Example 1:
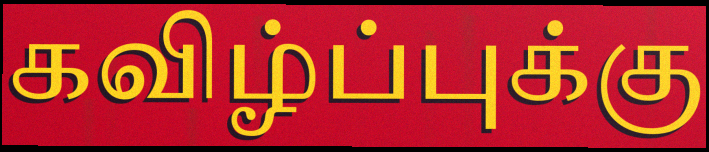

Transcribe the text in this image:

கவிழ்ப்புக்கு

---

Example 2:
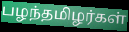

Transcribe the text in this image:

பழந்தமிழர்கள்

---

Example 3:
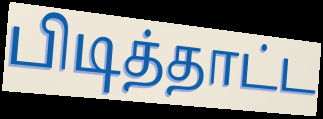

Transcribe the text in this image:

பிடித்தாட்ட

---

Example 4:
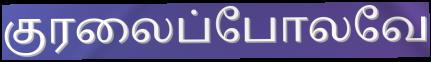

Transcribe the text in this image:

குரலைப்போலவே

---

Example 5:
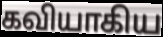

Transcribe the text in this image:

கவியாகிய